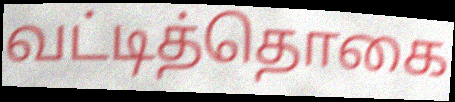
வட்டித்தொகை